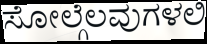
ಸೋಲ್ಗೆಲವುಗಳಲಿ